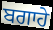
ਬਗਾਹੇ